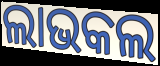
ଲାଭକଲ